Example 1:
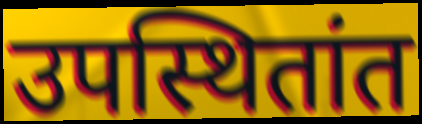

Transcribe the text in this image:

उपस्थितांत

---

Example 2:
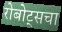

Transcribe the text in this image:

रोबोट्सचा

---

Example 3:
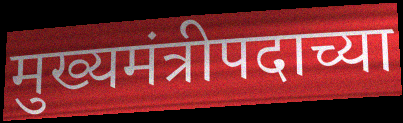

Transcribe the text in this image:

मुख्यमंत्रीपदाच्या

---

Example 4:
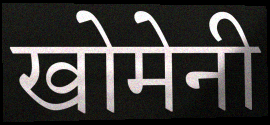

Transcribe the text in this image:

खोमेनी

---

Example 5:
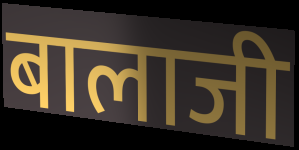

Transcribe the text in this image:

बालाजी